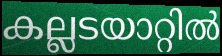
കല്ലടയാറ്റിൽ